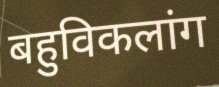
बहुविकलांग